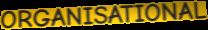
ORGANISATIONAL